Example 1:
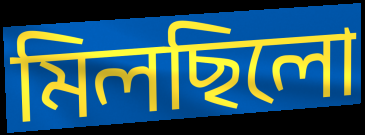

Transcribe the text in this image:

মিলছিলো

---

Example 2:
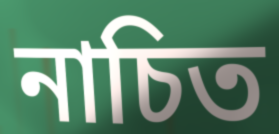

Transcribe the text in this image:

নাচিত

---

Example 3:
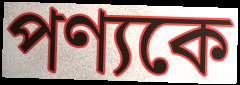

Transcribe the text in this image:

পণ্যকে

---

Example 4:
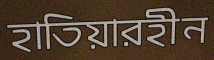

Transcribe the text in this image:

হাতিয়ারহীন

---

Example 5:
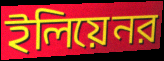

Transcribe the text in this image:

ইলিয়েনর